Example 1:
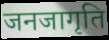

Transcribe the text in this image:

जनजागृति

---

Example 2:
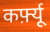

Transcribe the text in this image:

कर्फ़्यू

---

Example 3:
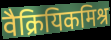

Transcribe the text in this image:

वैक्रियिकमिश्र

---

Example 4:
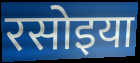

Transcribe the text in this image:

रसोइया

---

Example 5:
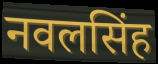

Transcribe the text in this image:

नवलसिंह